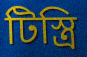
টিস্ত্রি